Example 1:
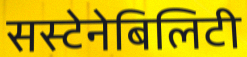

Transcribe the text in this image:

सस्टेनेबिलिटी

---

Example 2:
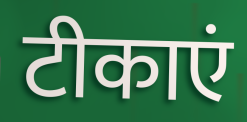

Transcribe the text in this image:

टीकाएं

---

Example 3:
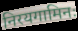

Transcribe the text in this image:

निरयगामिनः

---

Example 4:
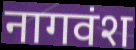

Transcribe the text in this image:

नागवंश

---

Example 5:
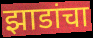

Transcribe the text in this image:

झाडांचा